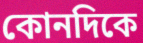
কোনদিকে